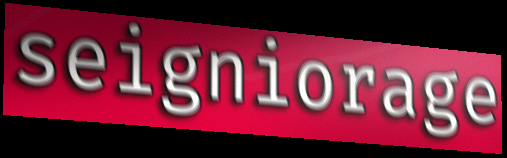
seigniorage